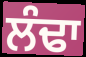
ਲੰਢਾ